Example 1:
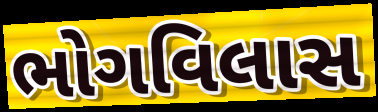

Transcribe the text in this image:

ભોગવિલાસ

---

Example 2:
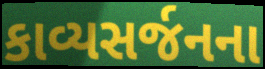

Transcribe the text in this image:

કાવ્યસર્જનના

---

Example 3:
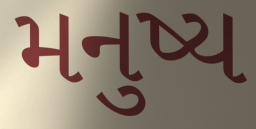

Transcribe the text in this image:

મનુષ્ય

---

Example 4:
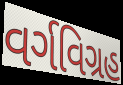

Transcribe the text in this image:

વર્ગવિગ્રહ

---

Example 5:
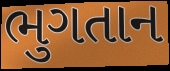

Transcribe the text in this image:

ભુગતાન